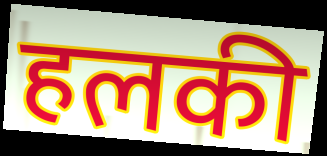
हलकी